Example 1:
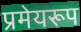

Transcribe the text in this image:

प्रमेयरूप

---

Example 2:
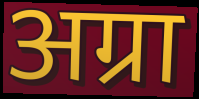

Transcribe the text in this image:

अग्रा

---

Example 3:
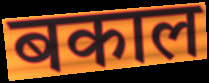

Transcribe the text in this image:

बकाल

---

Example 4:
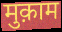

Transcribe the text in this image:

मुक़ाम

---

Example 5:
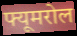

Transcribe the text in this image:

फ्यूमरोल